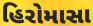
હિરોમાસા